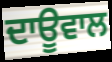
ਦਾਊਵਾਲ